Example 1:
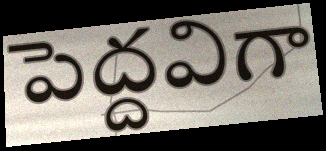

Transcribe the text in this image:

పెద్దవిగా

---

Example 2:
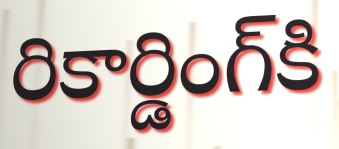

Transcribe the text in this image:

రికార్డింగ్‌కి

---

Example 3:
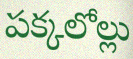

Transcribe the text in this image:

పక్కలోల్లు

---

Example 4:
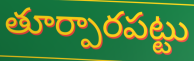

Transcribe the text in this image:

తూర్పారపట్టు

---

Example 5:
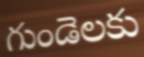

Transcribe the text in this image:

గుండెలకు